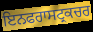
ਇਨਫਰਾਸਟ੍ਰਕਚਰ